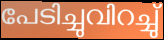
പേടിച്ചുവിറച്ചു്